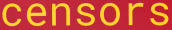
censors